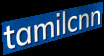
tamilcnn